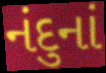
નંદુનાં